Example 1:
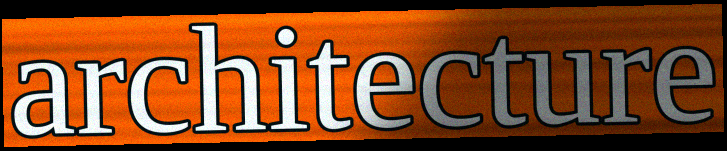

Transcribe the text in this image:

architecture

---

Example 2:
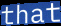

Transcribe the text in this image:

that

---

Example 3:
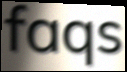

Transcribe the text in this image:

faqs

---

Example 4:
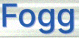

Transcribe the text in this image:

Fogg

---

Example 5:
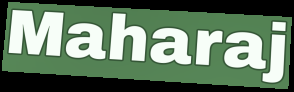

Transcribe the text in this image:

Maharaj